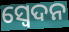
ସ୍ଵେଦନ